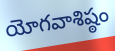
యోగవాశిష్ఠం